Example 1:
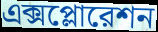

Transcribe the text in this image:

এক্সপ্লোরেশন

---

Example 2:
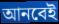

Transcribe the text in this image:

আনবেই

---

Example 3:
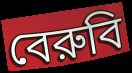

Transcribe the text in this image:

বেরুবি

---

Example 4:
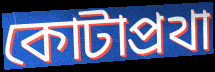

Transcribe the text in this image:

কোটাপ্রথা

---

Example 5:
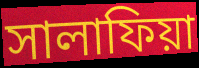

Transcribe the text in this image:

সালাফিয়া